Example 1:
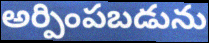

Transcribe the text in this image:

అర్పింపబడును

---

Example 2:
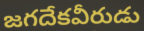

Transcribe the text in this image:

జగదేకవీరుడు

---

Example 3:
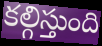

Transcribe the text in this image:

కల్గిస్తుంది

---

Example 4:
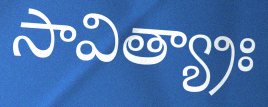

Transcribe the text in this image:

సావిత్య్రాః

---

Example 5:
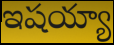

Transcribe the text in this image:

ఇషయ్యా